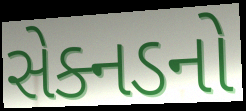
સેક્નડનો